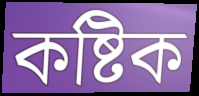
কষ্টিক